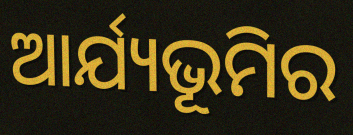
ଆର୍ଯ୍ୟଭୂମିର